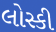
લોસ્કી